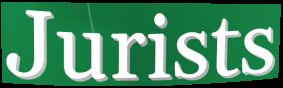
Jurists